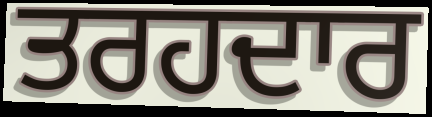
ਤਰਹਦਾਰ